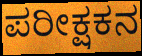
ಪರೀಕ್ಷಕನ